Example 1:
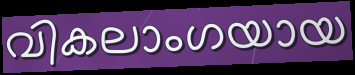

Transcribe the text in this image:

വികലാംഗയായ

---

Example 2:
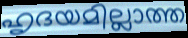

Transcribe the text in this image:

ഹൃദയമില്ലാത്ത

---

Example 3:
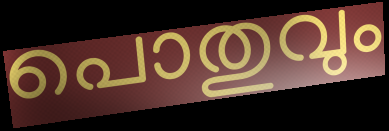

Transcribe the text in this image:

പൊതുവും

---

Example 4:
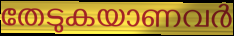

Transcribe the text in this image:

തേടുകയാണവർ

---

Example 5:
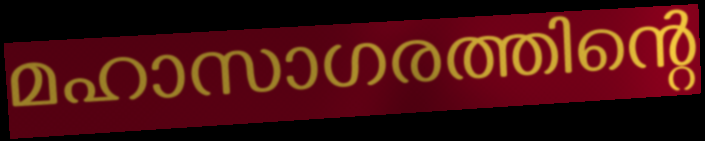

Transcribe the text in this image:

മഹാസാഗരത്തിന്റെ